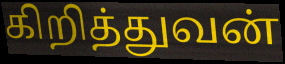
கிறித்துவன்